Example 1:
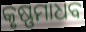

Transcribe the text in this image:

କୃଷ୍ଣମାଧବ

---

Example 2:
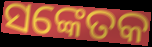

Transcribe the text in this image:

ସଙ୍କେତକ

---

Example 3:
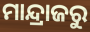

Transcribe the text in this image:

ମାନ୍ଦ୍ରାଜରୁ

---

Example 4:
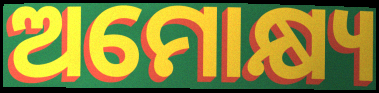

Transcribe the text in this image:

ଅମୋକ୍ଷ୍ୟ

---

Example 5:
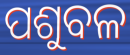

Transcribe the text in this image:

ପଶୁବଳ